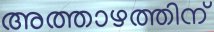
അത്താഴത്തിന്